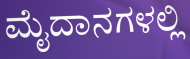
ಮೈದಾನಗಳಲ್ಲಿ